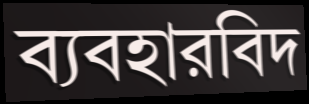
ব্যবহারবিদ